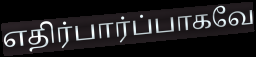
எதிர்பார்ப்பாகவே